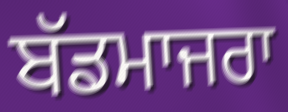
ਬੱਡਮਾਜਰਾ